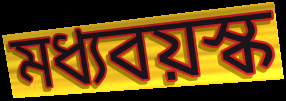
মধ্যবয়স্ক